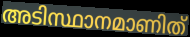
അടിസ്ഥാനമാണിത്